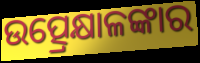
ଉତ୍ପ୍ରେକ୍ଷାଳଙ୍କାର